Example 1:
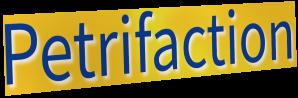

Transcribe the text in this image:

Petrifaction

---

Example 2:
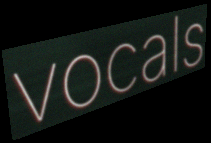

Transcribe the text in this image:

vocals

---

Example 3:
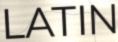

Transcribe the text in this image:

LATIN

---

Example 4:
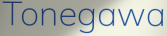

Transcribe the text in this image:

Tonegawa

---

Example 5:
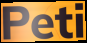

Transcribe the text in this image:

Peti